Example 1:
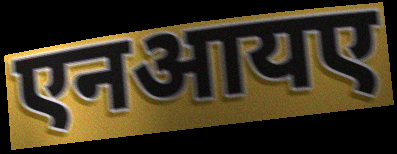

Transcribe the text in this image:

एनआयए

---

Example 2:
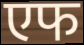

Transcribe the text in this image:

एफ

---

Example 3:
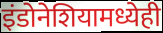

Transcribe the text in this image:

इंडोनेशियामध्येही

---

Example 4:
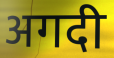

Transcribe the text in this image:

अगदी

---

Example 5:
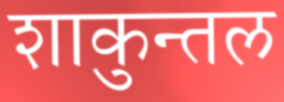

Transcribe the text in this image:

शाकुन्तल